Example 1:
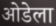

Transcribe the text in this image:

ओडेला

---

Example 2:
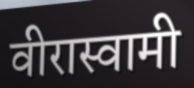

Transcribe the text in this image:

वीरास्वामी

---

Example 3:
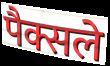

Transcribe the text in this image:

पैक्सले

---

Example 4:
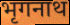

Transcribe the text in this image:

भृगनाथ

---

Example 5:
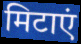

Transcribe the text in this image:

मिटाएं